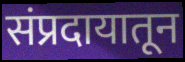
संप्रदायातून